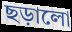
ছড়ালো